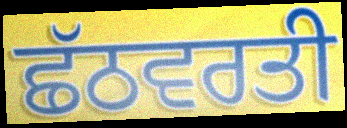
ਛੱਠਵਰਤੀ